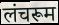
लंचरूम